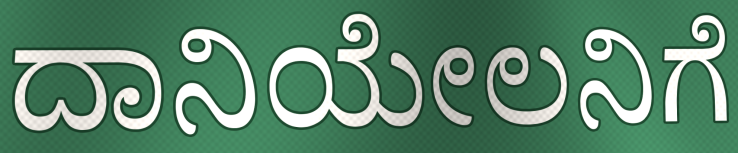
ದಾನಿಯೇಲನಿಗೆ